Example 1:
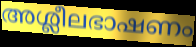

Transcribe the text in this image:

അശ്ലീലഭാഷണം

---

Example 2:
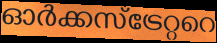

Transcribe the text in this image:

ഓർക്കസ്ട്രേറ്ററെ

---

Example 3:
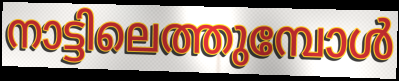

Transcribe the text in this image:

നാട്ടിലെത്തുമ്പോൾ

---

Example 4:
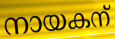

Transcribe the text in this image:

നായകന്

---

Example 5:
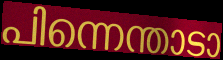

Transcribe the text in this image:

പിന്നെന്താടാ